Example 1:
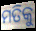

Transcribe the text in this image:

ମତିକୁ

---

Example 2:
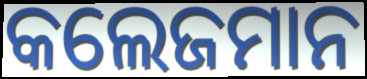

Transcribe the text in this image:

କଲେଜମାନ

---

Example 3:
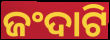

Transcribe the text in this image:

ଜଂଦାଟି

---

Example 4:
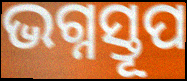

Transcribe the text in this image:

ଭଗ୍ନସ୍ତୂପ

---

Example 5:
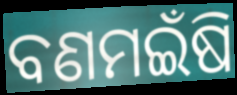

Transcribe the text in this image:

ବଣମଇଁଷି